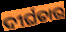
ଦୀର୍ଘତାର